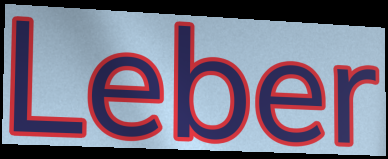
Leber